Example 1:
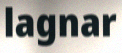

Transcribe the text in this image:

lagnar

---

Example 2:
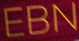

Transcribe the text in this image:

EBN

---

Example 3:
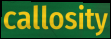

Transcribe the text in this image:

callosity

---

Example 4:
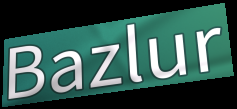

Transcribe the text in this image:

Bazlur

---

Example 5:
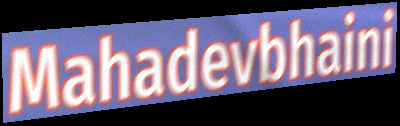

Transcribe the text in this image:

Mahadevbhaini